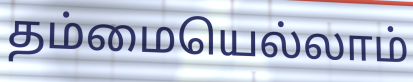
தம்மையெல்லாம்